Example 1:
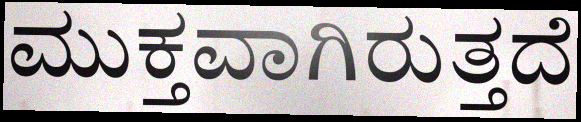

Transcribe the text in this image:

ಮುಕ್ತವಾಗಿರುತ್ತದೆ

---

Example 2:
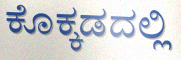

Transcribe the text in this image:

ಕೊಕ್ಕಡದಲ್ಲಿ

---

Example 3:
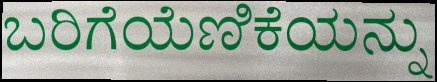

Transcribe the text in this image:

ಬರಿಗೆಯೆಣಿಕೆಯನ್ನು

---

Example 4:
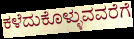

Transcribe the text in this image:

ಕಳೆದುಕೊಳ್ಳುವವರೆಗೆ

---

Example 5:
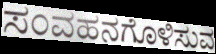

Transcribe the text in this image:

ಸಂವಹನಗೊಳಿಸುವ